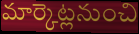
మార్కెట్లనుంచి